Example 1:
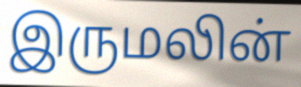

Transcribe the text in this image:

இருமலின்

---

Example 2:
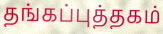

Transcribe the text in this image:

தங்கப்புத்தகம்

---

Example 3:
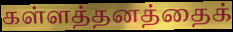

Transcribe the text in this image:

கள்ளத்தனத்தைக்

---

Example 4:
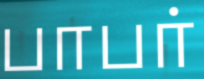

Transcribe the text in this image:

பாபர்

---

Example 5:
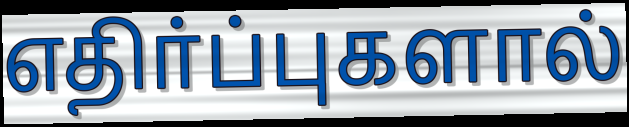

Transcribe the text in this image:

எதிர்ப்புகளால்